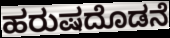
ಹರುಷದೊಡನೆ